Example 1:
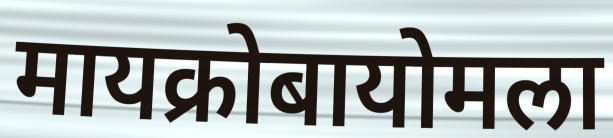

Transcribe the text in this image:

मायक्रोबायोमला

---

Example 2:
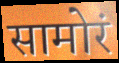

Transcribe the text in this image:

सामोरं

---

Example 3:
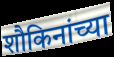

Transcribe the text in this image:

शौकिनांच्या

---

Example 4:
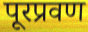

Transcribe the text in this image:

पूरप्रवण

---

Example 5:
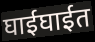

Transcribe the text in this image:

घाईघाईत